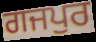
ਗਜਪੁਰ